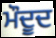
ਮੌਦੂਦ